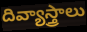
దివ్యాస్త్రాలు